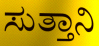
ಸುತ್ತಾನಿ